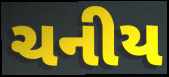
ચનીય